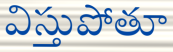
విస్తుపోతూ